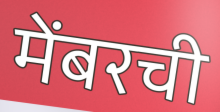
मेंबरची